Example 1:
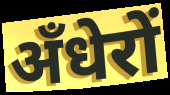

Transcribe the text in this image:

अँधेरों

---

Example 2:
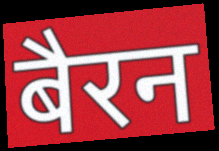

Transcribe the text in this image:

बैरन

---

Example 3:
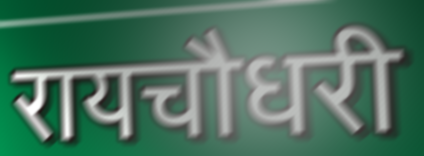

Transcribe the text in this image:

रायचौधरी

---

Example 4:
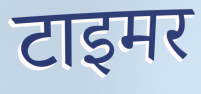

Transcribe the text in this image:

टाइमर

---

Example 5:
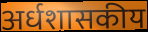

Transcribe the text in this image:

अर्धशासकीय